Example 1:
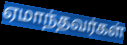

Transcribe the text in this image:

ஏமாந்தவர்கள்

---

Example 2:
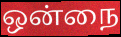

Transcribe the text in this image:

ஒன்நை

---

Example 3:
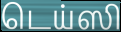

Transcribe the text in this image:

டெய்ஸி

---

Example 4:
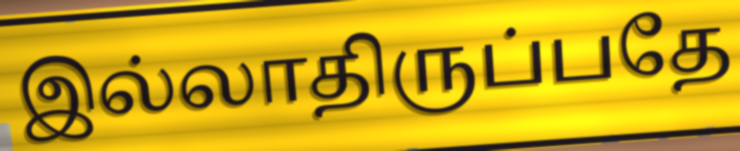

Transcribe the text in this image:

இல்லாதிருப்பதே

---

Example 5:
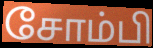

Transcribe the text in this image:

சோம்பி